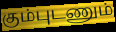
கும்புடணும்